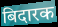
बिदारक